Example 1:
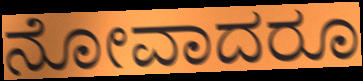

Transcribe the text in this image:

ನೋವಾದರೂ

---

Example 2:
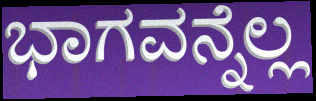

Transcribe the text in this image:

ಭಾಗವನ್ನೆಲ್ಲ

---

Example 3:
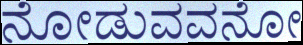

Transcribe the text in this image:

ನೋಡುವವನೋ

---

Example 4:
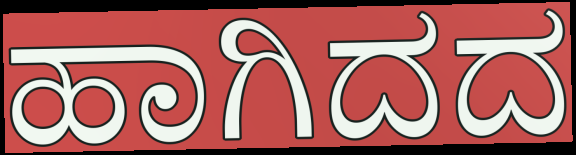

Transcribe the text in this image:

ಹಾಗಿದದ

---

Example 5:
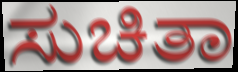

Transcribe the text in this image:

ಸುಚಿತಾ